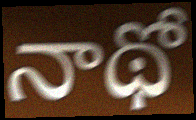
నాథో